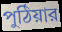
পুঠিয়ার